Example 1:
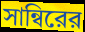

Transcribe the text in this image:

সান্বিরের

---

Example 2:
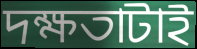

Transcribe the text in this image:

দক্ষতাটাই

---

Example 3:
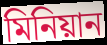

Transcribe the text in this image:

মিনিয়ান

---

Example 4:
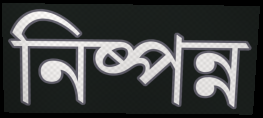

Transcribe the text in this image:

নিষ্পন্ন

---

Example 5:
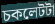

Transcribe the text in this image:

চকলেটটা